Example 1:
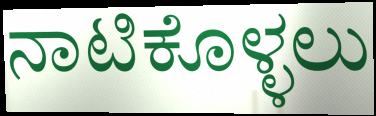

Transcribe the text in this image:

ನಾಟಿಕೊಳ್ಳಲು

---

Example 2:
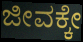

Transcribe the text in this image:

ಜೀವಕ್ಕೇ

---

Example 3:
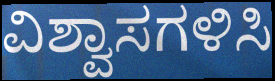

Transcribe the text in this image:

ವಿಶ್ವಾಸಗಳಿಸಿ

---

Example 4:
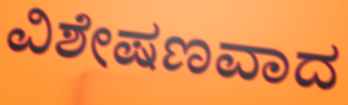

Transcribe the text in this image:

ವಿಶೇಷಣವಾದ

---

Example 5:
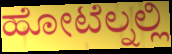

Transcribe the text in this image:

ಹೋಟೆಲ್ನಲ್ಲಿ